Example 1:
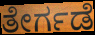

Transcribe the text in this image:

ತೇರ್ಗಡೆ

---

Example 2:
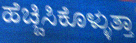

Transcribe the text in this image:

ಹೆಚ್ಚಿಸಿಕೊಳ್ಳುತ್ತಾ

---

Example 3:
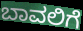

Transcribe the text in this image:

ಬಾವಲಿಗೆ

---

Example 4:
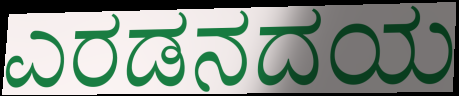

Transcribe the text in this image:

ಎರಡನದಯ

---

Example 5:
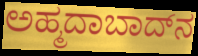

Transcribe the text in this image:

ಅಹ್ಮದಾಬಾದ್‌ನ